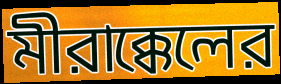
মীরাক্কেলের